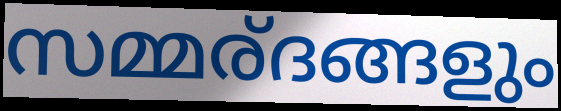
സമ്മര്ദങ്ങളും